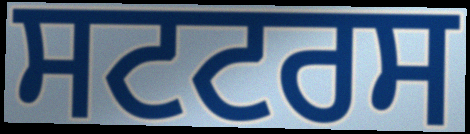
ਸਟਟਰਸ